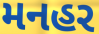
મનહર